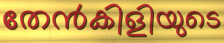
തേൻകിളിയുടെ